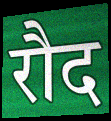
रौद